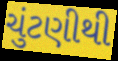
ચુંટણીથી